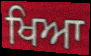
ਖਿਆ